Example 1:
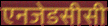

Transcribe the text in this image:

एनजेडसीसी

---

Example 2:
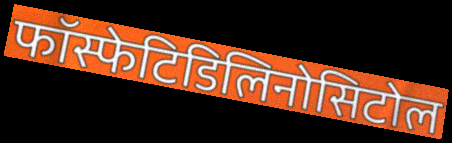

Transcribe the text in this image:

फॉस्फेटिडिलिनोसिटोल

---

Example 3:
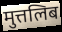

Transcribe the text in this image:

मुत्तलिब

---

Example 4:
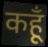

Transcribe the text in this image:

कहूँ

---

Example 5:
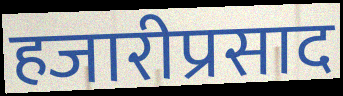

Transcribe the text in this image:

हजारीप्रसाद